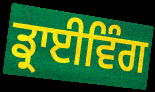
ਡ੍ਰਾਈਵਿੰਗ